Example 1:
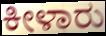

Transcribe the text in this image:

ಕೀಳಾರು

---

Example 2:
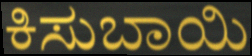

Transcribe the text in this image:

ಕಿಸುಬಾಯಿ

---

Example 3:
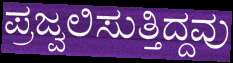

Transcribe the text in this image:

ಪ್ರಜ್ವಲಿಸುತ್ತಿದ್ದವು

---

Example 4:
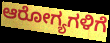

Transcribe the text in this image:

ಆರೋಗ್ಯಗಳಿಗೆ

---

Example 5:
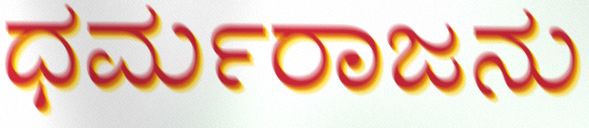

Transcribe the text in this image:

ಧರ್ಮರಾಜನು